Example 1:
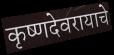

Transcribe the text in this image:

कृष्णदेवरायाचे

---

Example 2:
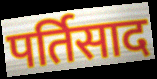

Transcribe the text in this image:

पर्तिसाद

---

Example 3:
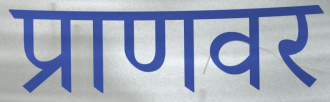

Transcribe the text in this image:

प्राणवर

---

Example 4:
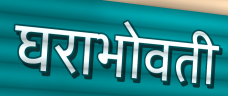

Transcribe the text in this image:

घराभोवती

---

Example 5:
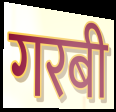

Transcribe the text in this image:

गरबी